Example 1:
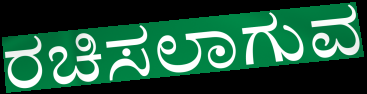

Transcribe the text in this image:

ರಚಿಸಲಾಗುವ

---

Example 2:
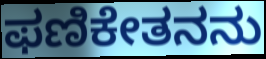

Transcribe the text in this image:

ಫಣಿಕೇತನನು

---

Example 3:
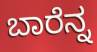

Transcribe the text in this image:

ಬಾರೆನ್ನ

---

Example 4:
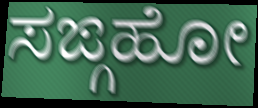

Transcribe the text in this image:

ಸಙ್ಗಹೋ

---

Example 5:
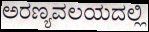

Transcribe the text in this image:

ಅರಣ್ಯವಲಯದಲ್ಲಿ